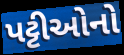
પટ્ટીઓનો